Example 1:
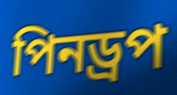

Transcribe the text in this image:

পিনড্রপ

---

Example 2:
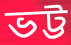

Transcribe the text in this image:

ভট্ট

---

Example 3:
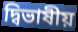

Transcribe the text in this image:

দ্বিভাষীয়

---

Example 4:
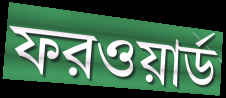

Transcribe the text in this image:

ফরওয়ার্ড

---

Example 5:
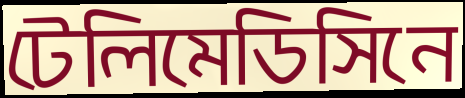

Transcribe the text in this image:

টেলিমেডিসিনে